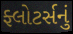
ફ્લોટર્સનું